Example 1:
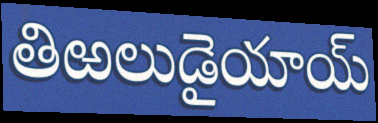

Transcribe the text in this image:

తిఱలుడైయాయ్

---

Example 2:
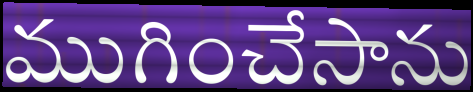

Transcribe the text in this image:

ముగించేసాను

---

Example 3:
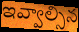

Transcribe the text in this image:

ఇవ్వాల్సిన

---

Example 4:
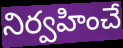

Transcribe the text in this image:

నిర్వహించే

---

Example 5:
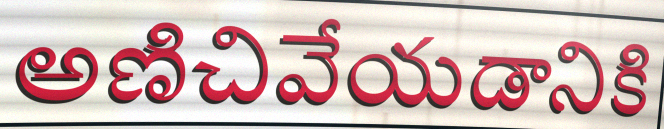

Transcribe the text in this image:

అణిచివేయడానికి